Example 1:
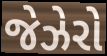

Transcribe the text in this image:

જેઝેરો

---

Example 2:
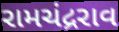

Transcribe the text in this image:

રામચંદ્રરાવ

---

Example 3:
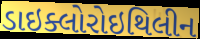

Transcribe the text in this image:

ડાઇક્લોરોઇથિલીન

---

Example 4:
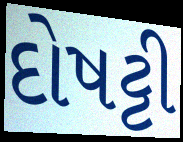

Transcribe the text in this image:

દોષટ્ટી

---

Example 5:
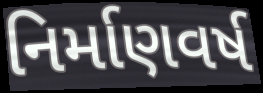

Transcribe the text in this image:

નિર્માણવર્ષ